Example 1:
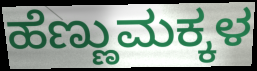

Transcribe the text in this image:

ಹೆಣ್ಣುಮಕ್ಕಳ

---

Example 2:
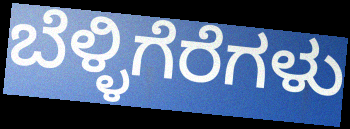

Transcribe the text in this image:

ಬೆಳ್ಳಿಗೆರೆಗಳು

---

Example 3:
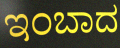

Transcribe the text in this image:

ಇಂಬಾದ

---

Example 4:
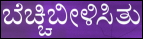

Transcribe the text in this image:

ಬೆಚ್ಚಿಬೀಳಿಸಿತು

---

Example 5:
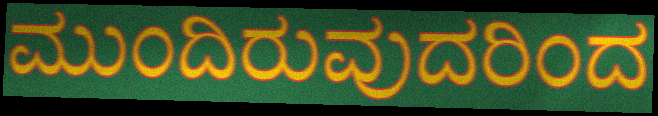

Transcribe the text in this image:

ಮುಂದಿರುವುದರಿಂದ